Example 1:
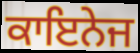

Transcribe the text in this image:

ਕਾਇਨੇਜ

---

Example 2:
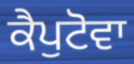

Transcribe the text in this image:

ਕੈਪੁਟੋਵਾ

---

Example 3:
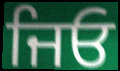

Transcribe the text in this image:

ਜਿਓ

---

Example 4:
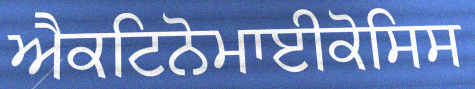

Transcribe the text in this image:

ਐਕਟਿਨੋਮਾਈਕੋਸਿਸ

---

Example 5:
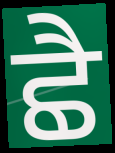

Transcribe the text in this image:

ਛੈ